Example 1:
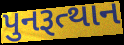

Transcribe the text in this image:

પુનરૂત્થાન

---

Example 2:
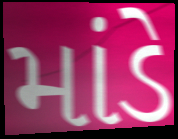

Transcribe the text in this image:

માંડે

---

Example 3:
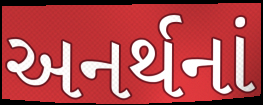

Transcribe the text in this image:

અનર્થનાં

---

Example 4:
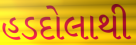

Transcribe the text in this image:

હડદોલાથી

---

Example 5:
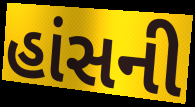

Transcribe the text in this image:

હાંસની